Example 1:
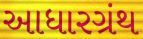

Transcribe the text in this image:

આધારગ્રંથ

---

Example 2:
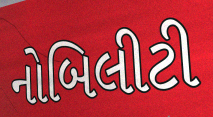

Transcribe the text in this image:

નોબિલીટી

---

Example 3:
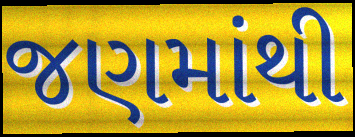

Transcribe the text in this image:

જણમાંથી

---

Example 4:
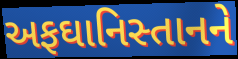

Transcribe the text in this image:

અફઘાનિસ્તાનને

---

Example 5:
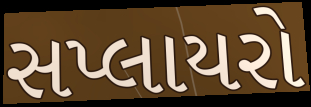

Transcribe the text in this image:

સપ્લાયરો